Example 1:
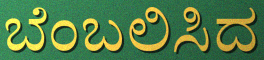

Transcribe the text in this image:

ಬೆಂಬಲಿಸಿದ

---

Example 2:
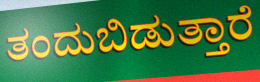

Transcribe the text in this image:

ತಂದುಬಿಡುತ್ತಾರೆ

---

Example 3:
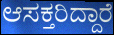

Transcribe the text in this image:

ಆಸಕ್ತರಿದ್ದಾರೆ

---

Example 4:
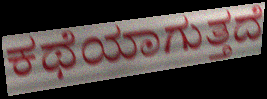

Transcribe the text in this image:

ಕಥೆಯಾಗುತ್ತದೆ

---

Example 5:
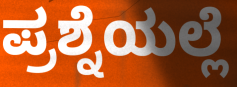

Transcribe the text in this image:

ಪ್ರಶ್ನೆಯಲ್ಲೆ